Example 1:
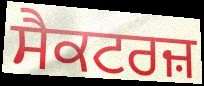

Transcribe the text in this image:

ਸੈਕਟਰਜ਼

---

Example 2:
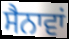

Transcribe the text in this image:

ਸੈਨਾਵਾਂ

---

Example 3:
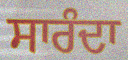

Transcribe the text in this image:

ਸਾਰੰਦਾ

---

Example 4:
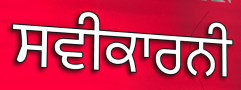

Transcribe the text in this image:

ਸਵੀਕਾਰਨੀ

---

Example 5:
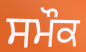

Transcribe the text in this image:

ਸਮੌਕ